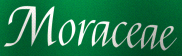
Moraceae